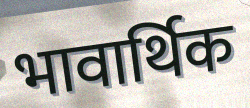
भावार्थिक